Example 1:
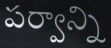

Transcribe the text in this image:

పర్వాన్ని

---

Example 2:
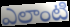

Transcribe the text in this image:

ఎలాంటి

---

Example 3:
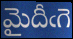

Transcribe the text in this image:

మైదీఁగె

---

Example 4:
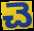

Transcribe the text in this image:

చె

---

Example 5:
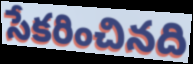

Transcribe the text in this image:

సేకరించినది